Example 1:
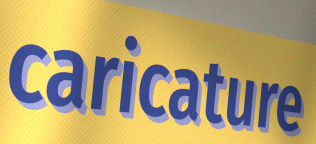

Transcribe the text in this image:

caricature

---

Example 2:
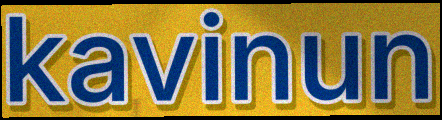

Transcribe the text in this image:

kavinun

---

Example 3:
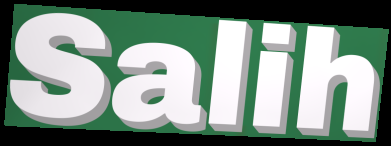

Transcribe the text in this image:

Salih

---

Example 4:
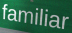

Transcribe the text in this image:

familiar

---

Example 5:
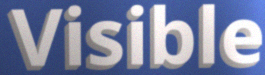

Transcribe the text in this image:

Visible